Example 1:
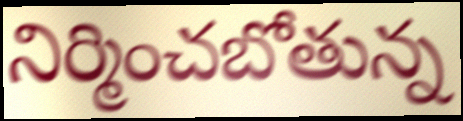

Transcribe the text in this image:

నిర్మించబోతున్న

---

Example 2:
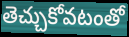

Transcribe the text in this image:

తెచ్చుకోవటంతో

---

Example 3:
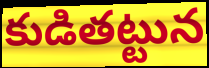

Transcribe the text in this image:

కుడితట్టున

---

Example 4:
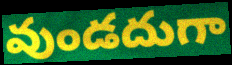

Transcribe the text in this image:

వుండదుగా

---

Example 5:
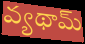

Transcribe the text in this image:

వ్యథామ్